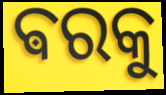
ଵରକୁ